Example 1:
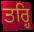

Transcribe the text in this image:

ਤਰ੍ਹਿ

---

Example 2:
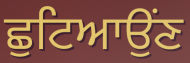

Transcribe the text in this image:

ਛੁਟਿਆਉਂਣ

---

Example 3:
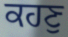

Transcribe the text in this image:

ਕਹਣੁ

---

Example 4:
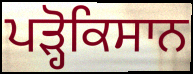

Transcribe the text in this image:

ਪੜ੍ਹੋਕਿਸਾਨ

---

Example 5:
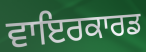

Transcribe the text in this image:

ਵਾਇਰਕਾਰਡ